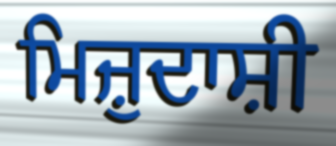
ਮਿਜ਼ੁਦਾਸ਼ੀ